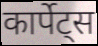
कार्पेट्स